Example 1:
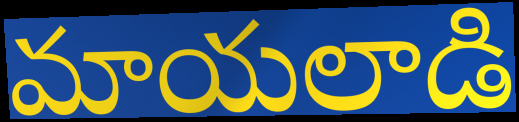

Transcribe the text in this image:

మాయలాడి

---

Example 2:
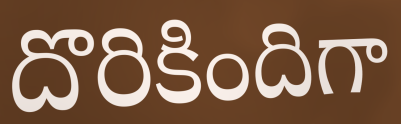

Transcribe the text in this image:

దొరికిందిగా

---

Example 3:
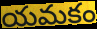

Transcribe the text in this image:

యమకం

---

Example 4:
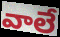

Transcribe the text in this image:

వాలే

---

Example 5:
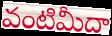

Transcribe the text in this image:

వంటిమీదా